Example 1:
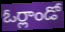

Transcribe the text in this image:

ఓర్లాండో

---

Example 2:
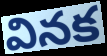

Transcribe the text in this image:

వినక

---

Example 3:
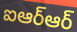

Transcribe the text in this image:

ఐఆర్ఆర్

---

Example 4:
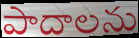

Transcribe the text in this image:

పాదాలను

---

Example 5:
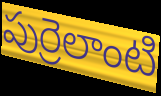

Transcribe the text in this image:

పుర్రెలాంటి